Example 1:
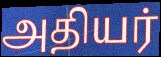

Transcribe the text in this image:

அதியர்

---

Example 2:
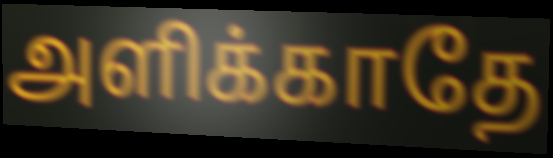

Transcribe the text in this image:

அளிக்காதே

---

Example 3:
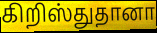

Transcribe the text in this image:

கிறிஸ்துதானா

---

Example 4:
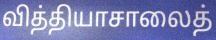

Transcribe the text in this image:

வித்தியாசாலைத்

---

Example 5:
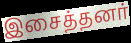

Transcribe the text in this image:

இசைத்தனர்